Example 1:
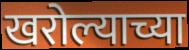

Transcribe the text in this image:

खरोल्याच्या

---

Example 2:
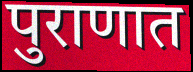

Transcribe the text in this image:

पुराणात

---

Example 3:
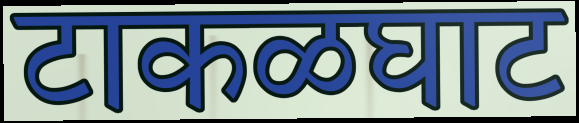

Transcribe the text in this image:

टाकळघाट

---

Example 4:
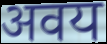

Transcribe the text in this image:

अवय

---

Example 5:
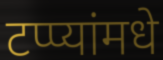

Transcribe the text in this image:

टप्प्यांमधे